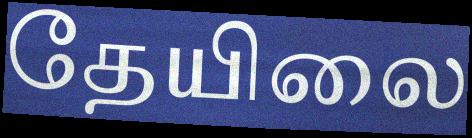
தேயிலை